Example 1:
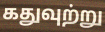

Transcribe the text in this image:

கதுவுற்று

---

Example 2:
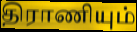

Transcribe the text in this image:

திராணியும்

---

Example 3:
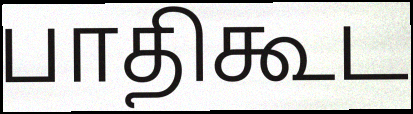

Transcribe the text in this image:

பாதிகூட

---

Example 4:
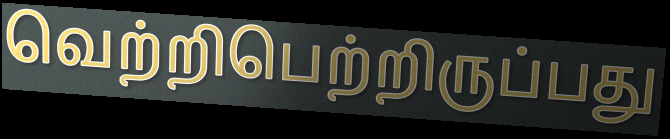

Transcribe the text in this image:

வெற்றிபெற்றிருப்பது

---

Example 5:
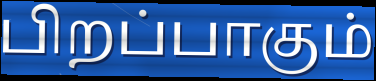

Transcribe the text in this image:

பிறப்பாகும்